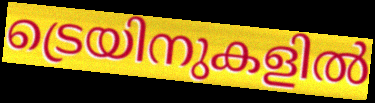
ട്രെയിനുകളിൽ